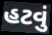
હટવું